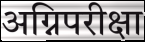
अग्निपरीक्षा